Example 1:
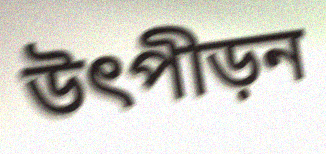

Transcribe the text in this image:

উৎপীড়ন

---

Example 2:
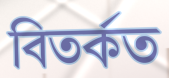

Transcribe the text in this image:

বিতৰ্কত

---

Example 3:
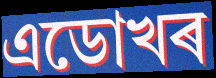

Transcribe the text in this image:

এডোখৰ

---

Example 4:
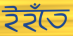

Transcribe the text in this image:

ইহঁতে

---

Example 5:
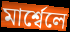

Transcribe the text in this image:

মাৰ্শ্বেলে